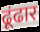
ढूंढार